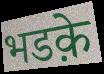
भडक़े